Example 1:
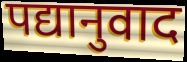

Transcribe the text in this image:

पद्यानुवाद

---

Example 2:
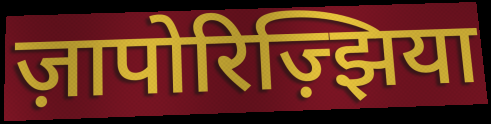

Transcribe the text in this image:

ज़ापोरिज़्झिया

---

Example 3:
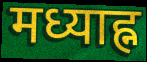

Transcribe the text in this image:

मध्याह्न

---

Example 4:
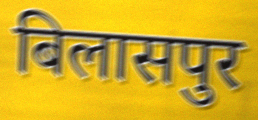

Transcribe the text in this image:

बिलासपुर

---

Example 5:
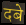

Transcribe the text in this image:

दबे